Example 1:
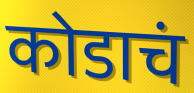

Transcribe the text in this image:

कोडाचं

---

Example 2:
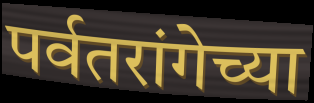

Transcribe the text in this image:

पर्वतरांगेच्या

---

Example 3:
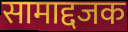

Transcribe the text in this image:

सामाद्दजक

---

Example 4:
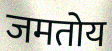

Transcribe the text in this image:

जमतोय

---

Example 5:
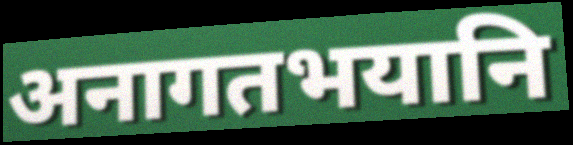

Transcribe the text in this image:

अनागतभयानि